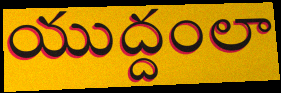
యుద్దంలా